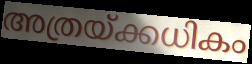
അത്രയ്ക്കധികം